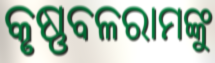
କୃଷ୍ଣବଳରାମଙ୍କୁ